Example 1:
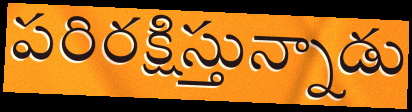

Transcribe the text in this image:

పరిరక్షిస్తున్నాడు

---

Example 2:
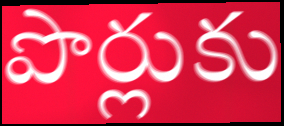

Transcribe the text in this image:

పొర్లుకు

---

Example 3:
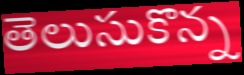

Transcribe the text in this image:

తెలుసుకొన్న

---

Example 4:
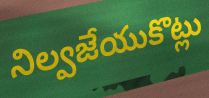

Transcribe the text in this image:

నిల్వజేయుకొట్లు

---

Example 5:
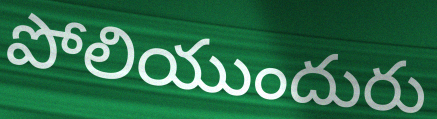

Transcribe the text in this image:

పోలియుందురు